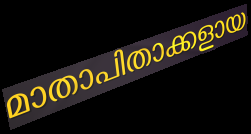
മാതാപിതാക്കളായ